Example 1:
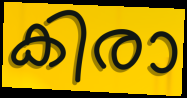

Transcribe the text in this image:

കിരാ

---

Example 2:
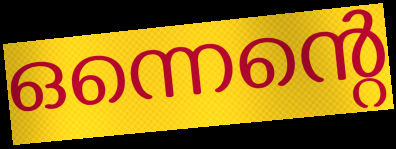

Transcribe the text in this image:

ഒന്നെന്റെ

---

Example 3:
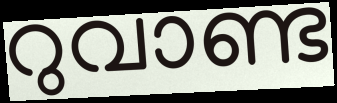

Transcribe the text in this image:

റുവാണ്ട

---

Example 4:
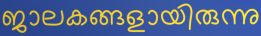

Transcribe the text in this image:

ജാലകങ്ങളായിരുന്നു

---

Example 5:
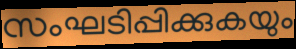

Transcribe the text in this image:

സംഘടിപ്പിക്കുകയും